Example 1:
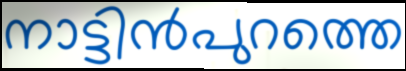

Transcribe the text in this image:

നാട്ടിൻപുറത്തെ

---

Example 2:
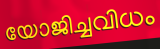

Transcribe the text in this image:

യോജിച്ചവിധം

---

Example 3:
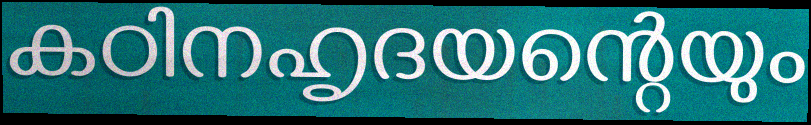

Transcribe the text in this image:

കഠിനഹൃദയന്റെയും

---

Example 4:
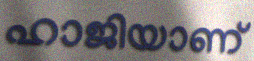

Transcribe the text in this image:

ഹാജിയാണ്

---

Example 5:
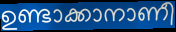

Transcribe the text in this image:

ഉണ്ടാക്കാനാണീ